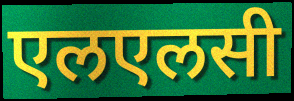
एलएलसी